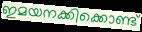
ഇമയനക്കിക്കൊണ്ട്